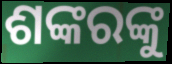
ଶଙ୍କରଙ୍କୁ